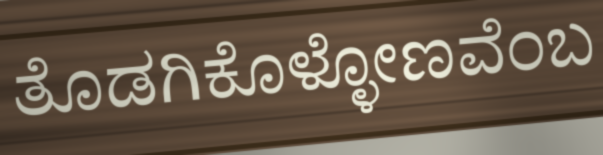
ತೊಡಗಿಕೊಳ್ಳೋಣವೆಂಬ